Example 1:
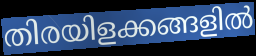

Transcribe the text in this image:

തിരയിളക്കങ്ങളിൽ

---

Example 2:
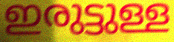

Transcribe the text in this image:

ഇരുട്ടുള്ള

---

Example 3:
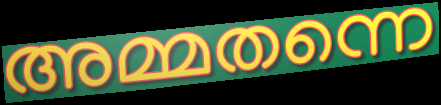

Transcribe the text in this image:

അമ്മതന്നെ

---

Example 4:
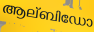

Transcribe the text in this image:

ആല്ബിഡോ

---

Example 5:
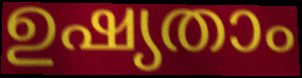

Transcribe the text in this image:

ഉഷ്യതാം